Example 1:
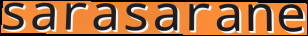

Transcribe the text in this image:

sarasarane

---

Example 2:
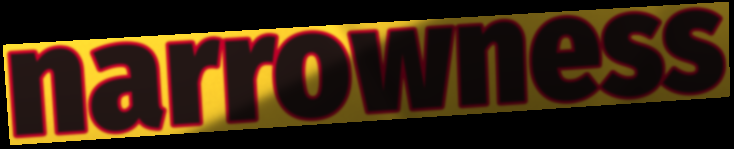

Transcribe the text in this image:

narrowness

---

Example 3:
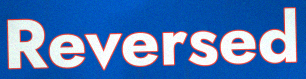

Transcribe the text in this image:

Reversed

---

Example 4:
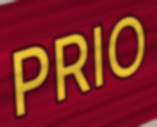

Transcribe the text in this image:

PRIO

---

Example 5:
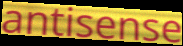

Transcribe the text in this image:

antisense